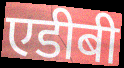
एडीबी